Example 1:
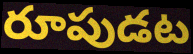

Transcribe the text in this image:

రూపుడట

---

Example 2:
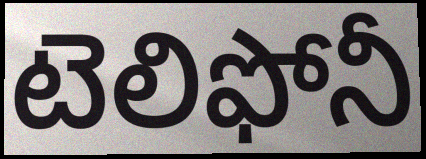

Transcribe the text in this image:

టెలిఫోనీ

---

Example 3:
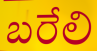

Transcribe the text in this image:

బరేలి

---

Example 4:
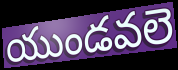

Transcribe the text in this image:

యుండవలె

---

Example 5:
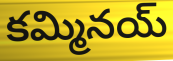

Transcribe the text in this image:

కమ్మినయ్